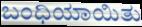
ಬಂಧಿಯಾಯಿತು